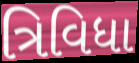
ત્રિવિધા